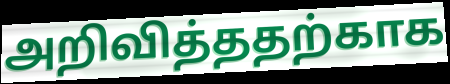
அறிவித்ததற்காக